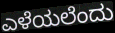
ಎಳೆಯಲೆಂದು